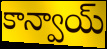
కాన్వాయ్